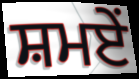
ਸ਼ਮਏਂ